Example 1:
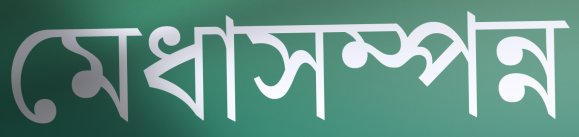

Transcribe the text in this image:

মেধাসম্পন্ন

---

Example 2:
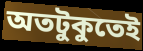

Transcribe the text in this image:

অতটুকুতেই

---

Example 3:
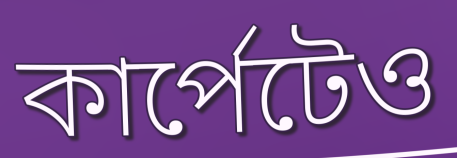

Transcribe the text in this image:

কার্পেটেও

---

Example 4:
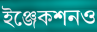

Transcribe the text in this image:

ইঞ্জেকশনও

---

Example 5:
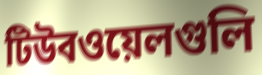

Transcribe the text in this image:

টিউবওয়েলগুলি